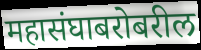
महासंघाबरोबरील